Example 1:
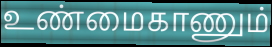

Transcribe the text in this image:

உண்மைகாணும்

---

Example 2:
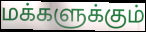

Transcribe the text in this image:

மக்களுக்கும்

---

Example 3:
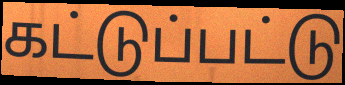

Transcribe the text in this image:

கட்டுப்பட்டு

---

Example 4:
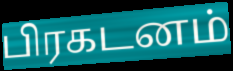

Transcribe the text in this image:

பிரகடனம்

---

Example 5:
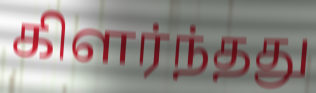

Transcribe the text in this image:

கிளர்ந்தது